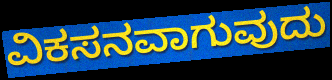
ವಿಕಸನವಾಗುವುದು